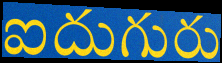
ఐదుగురు